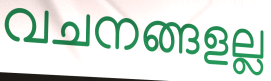
വചനങ്ങളല്ല